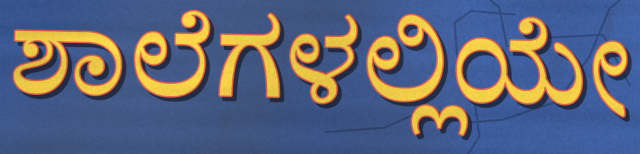
ಶಾಲೆಗಳಲ್ಲಿಯೇ